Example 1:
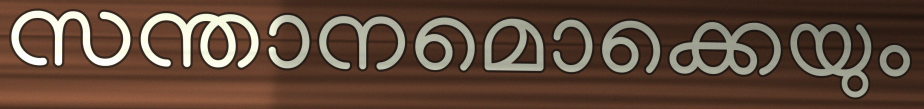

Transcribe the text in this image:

സന്താനമൊക്കെയും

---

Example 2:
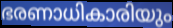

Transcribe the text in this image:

ഭരണാധികാരിയും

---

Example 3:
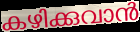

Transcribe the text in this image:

കഴിക്കുവാൻ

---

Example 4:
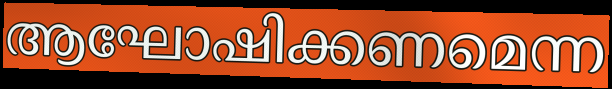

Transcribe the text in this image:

ആഘോഷിക്കണമെന്ന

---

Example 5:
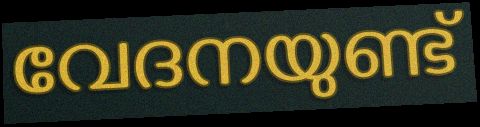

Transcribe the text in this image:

വേദനയുണ്ട്